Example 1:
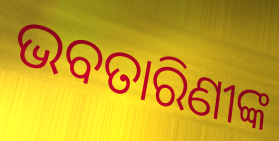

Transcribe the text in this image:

ଭବତାରିଣୀଙ୍କ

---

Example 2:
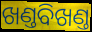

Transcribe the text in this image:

ଖଣ୍ତବିଖଣ୍ତ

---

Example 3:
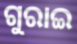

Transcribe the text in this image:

ଗୁରାଇ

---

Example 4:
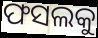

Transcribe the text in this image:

ଫସଲକୁ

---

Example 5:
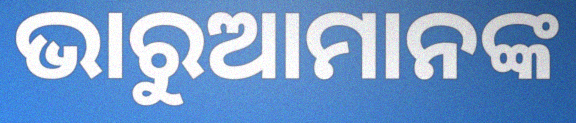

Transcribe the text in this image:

ଭାରୁଆମାନଙ୍କ